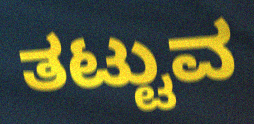
ತಟ್ಟುವ